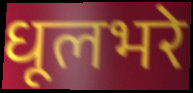
धूलभरे